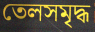
তেলসমৃদ্ধ